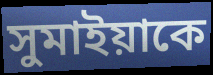
সুমাইয়াকে